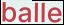
balle